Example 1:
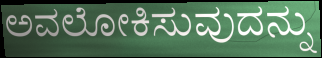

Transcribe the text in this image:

ಅವಲೋಕಿಸುವುದನ್ನು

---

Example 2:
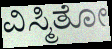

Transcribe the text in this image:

ವಿಸ್ಮಿತೋ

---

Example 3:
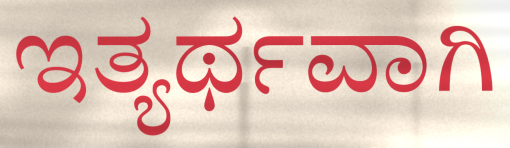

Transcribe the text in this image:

ಇತ್ಯರ್ಥವಾಗಿ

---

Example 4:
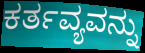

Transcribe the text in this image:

ಕರ್ತವ್ಯವನ್ನು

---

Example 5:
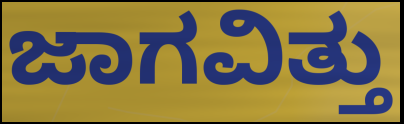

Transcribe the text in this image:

ಜಾಗವಿತ್ತು